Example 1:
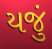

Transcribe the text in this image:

યજું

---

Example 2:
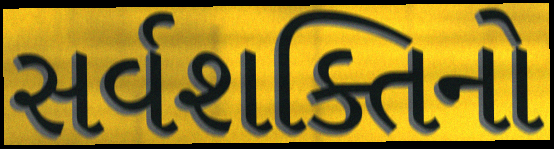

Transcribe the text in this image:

સર્વશક્તિનો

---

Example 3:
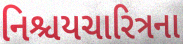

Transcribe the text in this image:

નિશ્ચયચારિત્રના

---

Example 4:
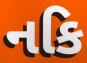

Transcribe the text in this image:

નકિ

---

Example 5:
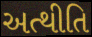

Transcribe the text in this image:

અત્થીતિ